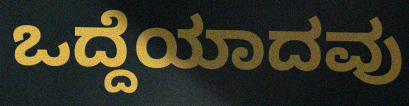
ಒದ್ದೆಯಾದವು